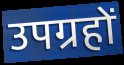
उपग्रहों